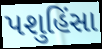
પશુહિંસા